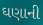
ઘણાની